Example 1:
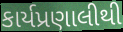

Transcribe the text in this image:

કાર્યપ્રણાલીથી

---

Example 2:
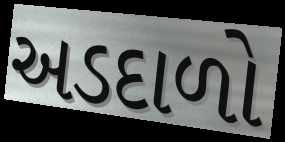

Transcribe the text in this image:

અડદાળો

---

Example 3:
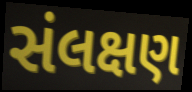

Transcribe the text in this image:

સંલક્ષણ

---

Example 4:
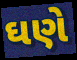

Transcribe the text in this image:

ઘણે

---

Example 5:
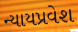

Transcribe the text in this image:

ન્યાયપ્રવેશ